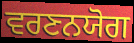
ਵਰਣਨਯੋਗ